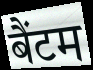
बैंटम